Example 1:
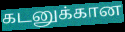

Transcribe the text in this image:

கடனுக்கான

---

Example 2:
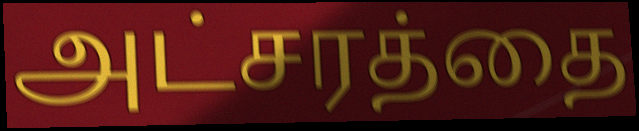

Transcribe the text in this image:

அட்சரத்தை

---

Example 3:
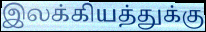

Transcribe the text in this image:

இலக்கியத்துக்கு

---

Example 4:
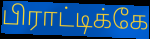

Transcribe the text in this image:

பிராட்டிக்கே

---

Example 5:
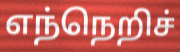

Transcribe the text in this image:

எந்நெறிச்